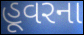
હૂવરના